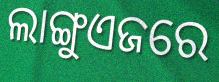
ଲାଙ୍ଗୁଏଜରେ